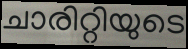
ചാരിറ്റിയുടെ